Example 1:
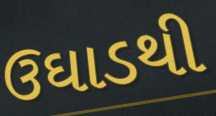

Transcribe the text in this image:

ઉઘાડથી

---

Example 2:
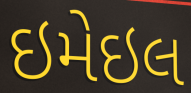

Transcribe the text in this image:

ઇમેઇલ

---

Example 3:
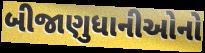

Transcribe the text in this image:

બીજાણુધાનીઓનો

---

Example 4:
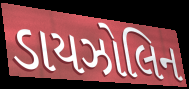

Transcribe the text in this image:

ડાયઝોલિન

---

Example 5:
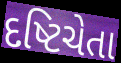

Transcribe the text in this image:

દષ્ટિચેતા